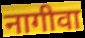
नागीवा